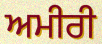
ਅਮੀਰੀ